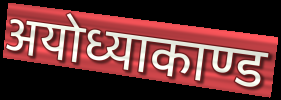
अयोध्याकाण्ड